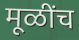
मूळींच